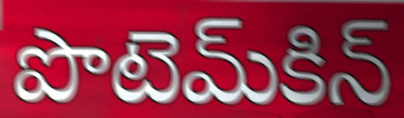
పొటెమ్‌కిన్